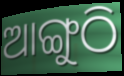
ଆଙ୍ଗୁଠି